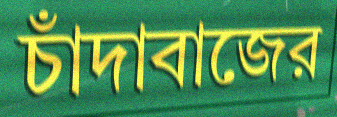
চাঁদাবাজের